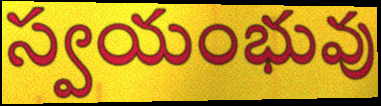
స్వయంభువు